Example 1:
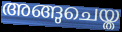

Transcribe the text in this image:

അങ്ങുചെയ്ത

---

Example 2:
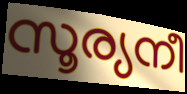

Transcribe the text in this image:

സൂര്യനീ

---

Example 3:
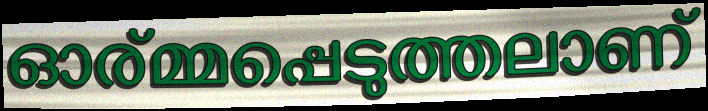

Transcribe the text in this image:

ഓര്മ്മപ്പെടുത്തലാണ്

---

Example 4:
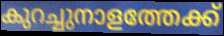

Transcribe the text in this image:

കുറച്ചുനാളത്തേക്ക്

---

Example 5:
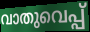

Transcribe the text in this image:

വാതുവെപ്പ്